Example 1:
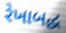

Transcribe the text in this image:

રેખાબદ્ધ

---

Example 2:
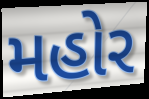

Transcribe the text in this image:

મહોર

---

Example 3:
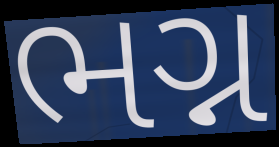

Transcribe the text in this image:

ભગ્ન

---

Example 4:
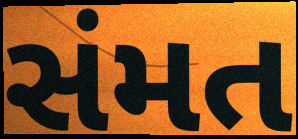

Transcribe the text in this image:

સંમત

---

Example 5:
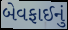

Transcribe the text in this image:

બેવફાઈનું